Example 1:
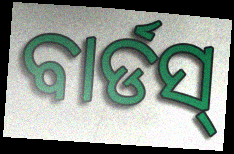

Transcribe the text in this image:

ବାର୍ଡସ୍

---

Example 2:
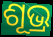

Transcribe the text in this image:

ଶୂଭ୍ର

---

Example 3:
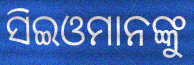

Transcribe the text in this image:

ସିଇଓମାନଙ୍କୁ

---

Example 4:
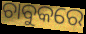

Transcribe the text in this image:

ଚାବୁକରେ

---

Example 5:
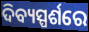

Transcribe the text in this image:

ଦିବ୍ୟସ୍ପର୍ଶରେ